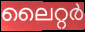
ലൈറ്റർ